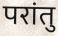
परांतु